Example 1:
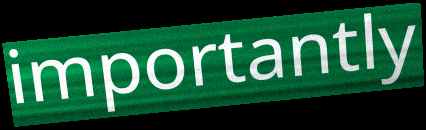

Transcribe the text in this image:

importantly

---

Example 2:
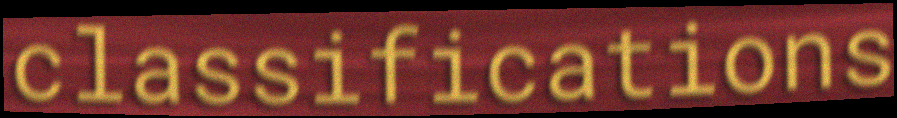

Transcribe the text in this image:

classifications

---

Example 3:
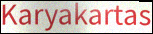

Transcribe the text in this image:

Karyakartas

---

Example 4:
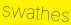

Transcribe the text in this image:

swathes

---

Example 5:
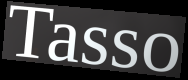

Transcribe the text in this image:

Tasso